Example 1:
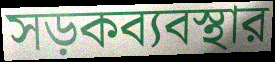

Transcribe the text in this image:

সড়কব্যবস্থার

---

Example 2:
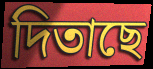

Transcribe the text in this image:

দিতাছে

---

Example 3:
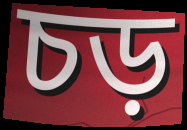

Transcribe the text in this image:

চড়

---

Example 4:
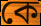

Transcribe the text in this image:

কে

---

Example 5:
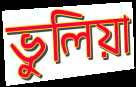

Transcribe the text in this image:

ভুলিয়া